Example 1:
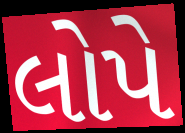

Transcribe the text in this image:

લોપે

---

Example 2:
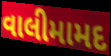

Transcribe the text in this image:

વાલીમામદ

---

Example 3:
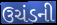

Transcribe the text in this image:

ઉચંડની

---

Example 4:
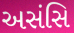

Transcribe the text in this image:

અસંસિ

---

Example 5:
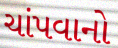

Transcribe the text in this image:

ચાંપવાનો